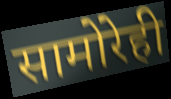
सामोरेही